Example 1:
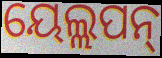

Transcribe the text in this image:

ୟେଲ୍ଲପନ୍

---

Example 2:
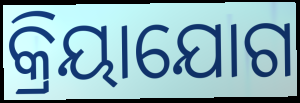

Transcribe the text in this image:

କ୍ରିୟାଯୋଗ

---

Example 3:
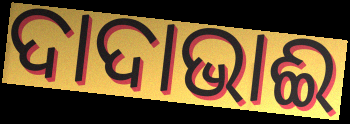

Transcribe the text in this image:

ଦାଦାଭାଈ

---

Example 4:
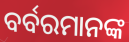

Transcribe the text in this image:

ବର୍ବରମାନଙ୍କ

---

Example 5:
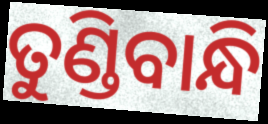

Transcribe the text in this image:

ତୁଣ୍ଡିବାନ୍ଧି